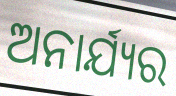
ଅନାର୍ଯ୍ୟର